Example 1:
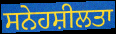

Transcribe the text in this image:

ਸਨੇਹਸ਼ੀਲਤਾ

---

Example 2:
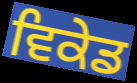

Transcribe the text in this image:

ਵਿਕੇਡ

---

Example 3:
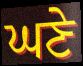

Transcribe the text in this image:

ਘਣੇ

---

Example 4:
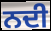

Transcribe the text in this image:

ਨਦੀ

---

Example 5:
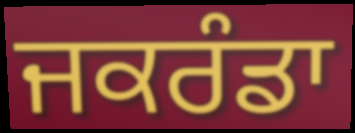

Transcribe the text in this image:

ਜਕਰੰਡਾ